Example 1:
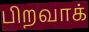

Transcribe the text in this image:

பிறவாக்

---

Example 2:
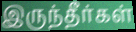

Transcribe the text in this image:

இருந்தீர்கள்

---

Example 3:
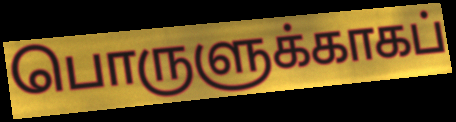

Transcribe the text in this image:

பொருளுக்காகப்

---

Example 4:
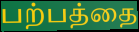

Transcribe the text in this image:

பற்பத்தை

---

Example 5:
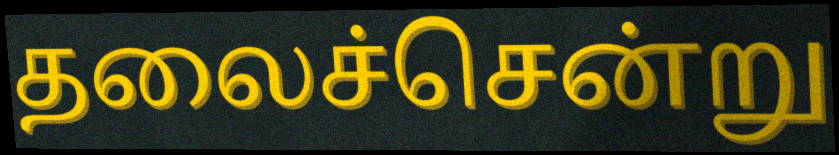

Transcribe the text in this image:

தலைச்சென்று